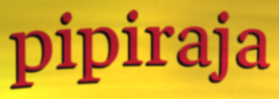
pipiraja